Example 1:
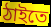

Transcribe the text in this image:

ঠাইতে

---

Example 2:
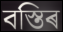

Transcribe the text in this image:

বস্তিৰ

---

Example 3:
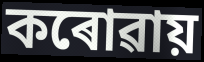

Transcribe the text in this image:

কৰোৱায়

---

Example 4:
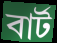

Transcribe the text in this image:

বাৰ্ট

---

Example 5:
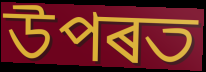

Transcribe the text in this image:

উপৰত